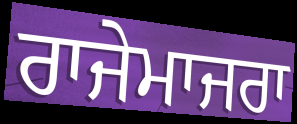
ਰਾਜੇਮਾਜਰਾ